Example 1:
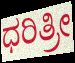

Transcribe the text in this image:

ಧರಿತ್ರೀ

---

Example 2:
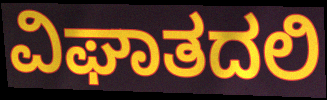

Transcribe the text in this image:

ವಿಘಾತದಲಿ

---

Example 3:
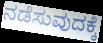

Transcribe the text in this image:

ನಡೆಸುವುದಕ್ಕೆ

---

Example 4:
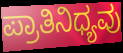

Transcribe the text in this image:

ಪ್ರಾತಿನಿಧ್ಯವು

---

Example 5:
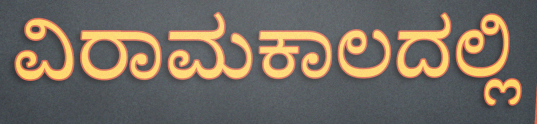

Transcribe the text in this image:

ವಿರಾಮಕಾಲದಲ್ಲಿ